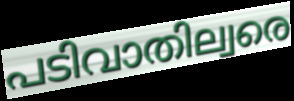
പടിവാതില്വരെ